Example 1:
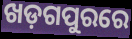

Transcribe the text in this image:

ଖଡ଼ଗପୁରରେ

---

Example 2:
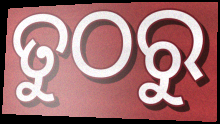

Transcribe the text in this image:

ତୁଠରୁ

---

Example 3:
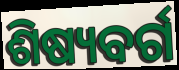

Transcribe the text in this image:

ଶିଷ୍ୟବର୍ଗ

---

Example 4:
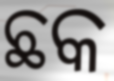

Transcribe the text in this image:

ଛକ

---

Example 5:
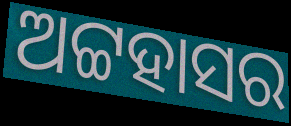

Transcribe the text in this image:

ଅଟ୍ଟହାସର